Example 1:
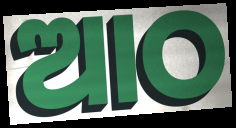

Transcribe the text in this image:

ଆଠ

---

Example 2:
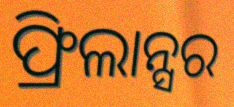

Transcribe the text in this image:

ଫ୍ରିଲାନ୍ସର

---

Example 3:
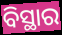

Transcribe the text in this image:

ବିସ୍ଥାର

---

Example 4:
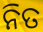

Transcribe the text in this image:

ନିତ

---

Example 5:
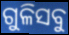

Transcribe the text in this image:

ଗୁଳିସବୁ